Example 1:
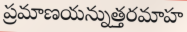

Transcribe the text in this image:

ప్రమాణయన్నుత్తరమాహ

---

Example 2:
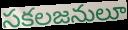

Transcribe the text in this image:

సకలజనులూ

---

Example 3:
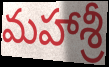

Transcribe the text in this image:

మహాశ్రీ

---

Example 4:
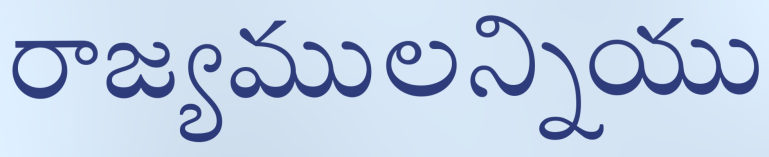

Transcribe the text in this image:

రాజ్యములన్నియు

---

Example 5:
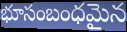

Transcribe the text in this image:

భూసంబంధమైన